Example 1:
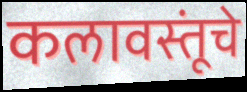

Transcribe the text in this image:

कलावस्तूंचे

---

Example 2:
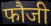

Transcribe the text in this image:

फौजी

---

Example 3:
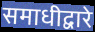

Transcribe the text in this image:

समाधीद्वारे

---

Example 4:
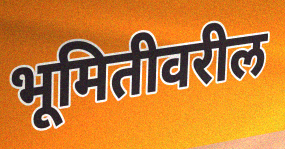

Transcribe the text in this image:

भूमितीवरील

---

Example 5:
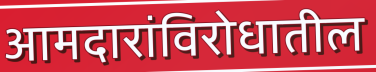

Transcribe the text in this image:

आमदारांविरोधातील